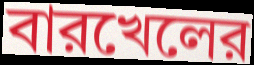
বারখেলের